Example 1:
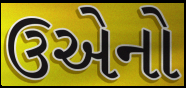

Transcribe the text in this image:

ઉએનો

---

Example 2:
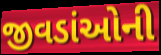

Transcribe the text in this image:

જીવડાંઓની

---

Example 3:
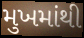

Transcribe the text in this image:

મુખમાંથી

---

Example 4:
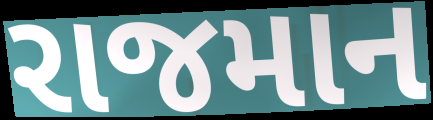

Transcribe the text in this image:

રાજમાન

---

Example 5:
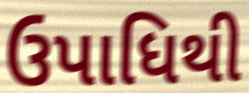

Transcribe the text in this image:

ઉપાધિથી